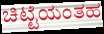
ಚಿಟ್ಟೆಯಂತಹ